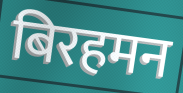
बिरहमन